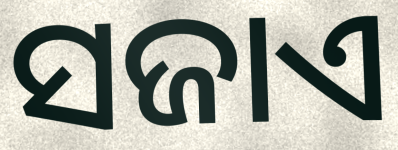
ସଜାଏ